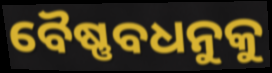
ବୈଷ୍ଣବଧନୁକୁ